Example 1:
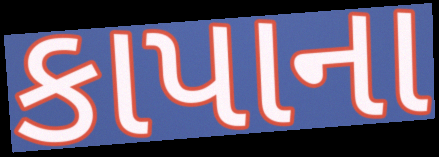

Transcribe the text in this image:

કાપાના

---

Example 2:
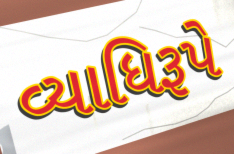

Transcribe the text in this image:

વ્યાધિરૂપે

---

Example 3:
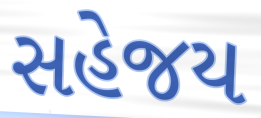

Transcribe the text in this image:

સહેજય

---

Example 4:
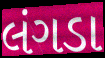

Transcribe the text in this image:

લંગડા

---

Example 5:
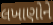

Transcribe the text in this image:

લખાણોને